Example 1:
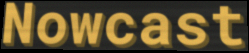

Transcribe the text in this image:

Nowcast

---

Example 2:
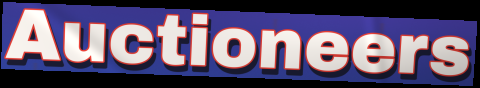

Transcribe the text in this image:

Auctioneers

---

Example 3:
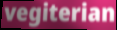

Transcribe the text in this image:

vegiterian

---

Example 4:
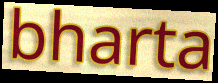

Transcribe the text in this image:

bharta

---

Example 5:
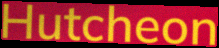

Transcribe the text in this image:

Hutcheon